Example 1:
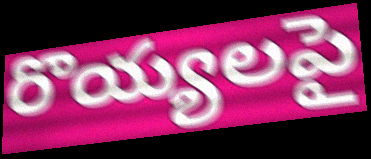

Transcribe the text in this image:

రొయ్యలపై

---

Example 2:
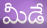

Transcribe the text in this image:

మీడే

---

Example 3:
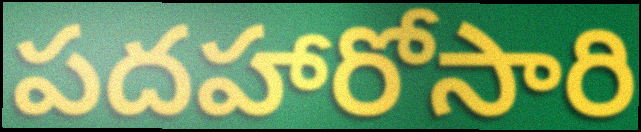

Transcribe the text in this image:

పదహారోసారి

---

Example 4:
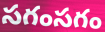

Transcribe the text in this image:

సగంసగం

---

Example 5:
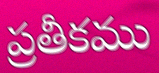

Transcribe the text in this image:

ప్రతీకము